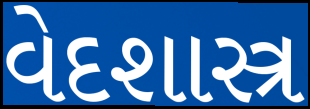
વેદશાસ્ત્ર